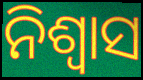
ନିଶ୍ଵାସ